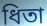
ধিতা